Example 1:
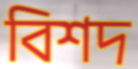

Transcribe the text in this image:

বিশদ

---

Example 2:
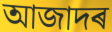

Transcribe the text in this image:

আজাদৰ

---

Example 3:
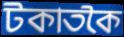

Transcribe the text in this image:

টকাতকৈ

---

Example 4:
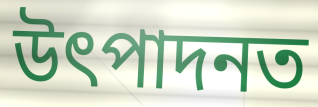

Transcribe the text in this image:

উৎপাদনত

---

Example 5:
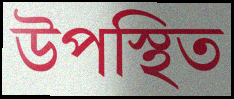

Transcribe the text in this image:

উপস্থিত